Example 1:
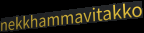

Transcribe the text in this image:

nekkhammavitakko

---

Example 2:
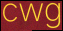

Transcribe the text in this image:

cwg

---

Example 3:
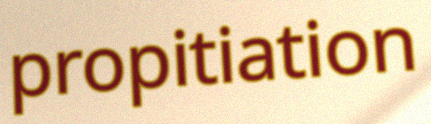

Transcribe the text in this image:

propitiation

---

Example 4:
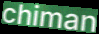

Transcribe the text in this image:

chiman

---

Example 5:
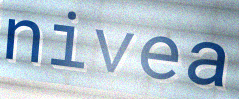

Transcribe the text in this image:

nivea